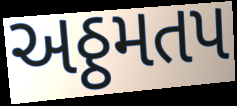
અઠ્ઠમતપ